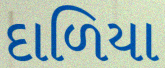
દાળિયા